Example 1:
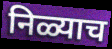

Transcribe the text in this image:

निळ्याच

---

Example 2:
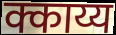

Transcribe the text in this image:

क्काय्य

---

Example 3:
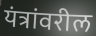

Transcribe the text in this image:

यंत्रांवरील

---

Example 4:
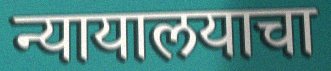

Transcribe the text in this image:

न्यायालयाचा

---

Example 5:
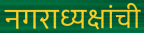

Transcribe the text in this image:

नगराध्यक्षांची